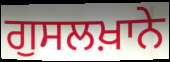
ਗੁਸਲਖ਼ਾਨੇ